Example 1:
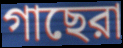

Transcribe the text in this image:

গাছেরা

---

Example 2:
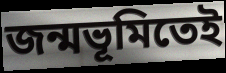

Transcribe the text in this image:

জন্মভূমিতেই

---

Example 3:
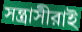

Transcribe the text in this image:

সন্ত্রাসীরাই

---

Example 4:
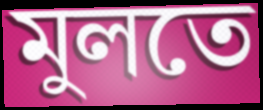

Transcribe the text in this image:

মুলতে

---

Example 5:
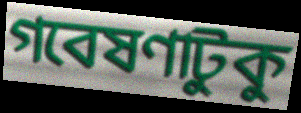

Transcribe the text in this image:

গবেষণাটুকু